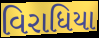
વિરાધિયા